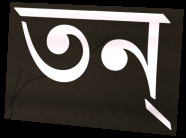
তন্